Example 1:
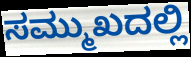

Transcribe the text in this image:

ಸಮ್ಮುಖದಲ್ಲಿ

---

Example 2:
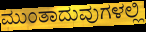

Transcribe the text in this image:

ಮುಂತಾದುವುಗಳಲ್ಲಿ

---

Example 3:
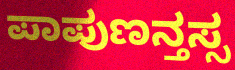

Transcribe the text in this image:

ಪಾಪುಣನ್ತಸ್ಸ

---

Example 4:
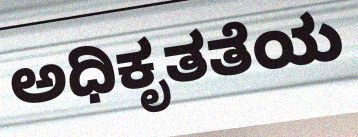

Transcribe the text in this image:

ಅಧಿಕೃತತೆಯ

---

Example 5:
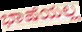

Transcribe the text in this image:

ಭಾಷೆಯಲ್ಲ